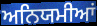
ਅਨਿਯਮੀਆਂ